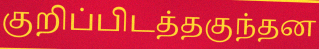
குறிப்பிடத்தகுந்தன